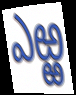
ఎఱ్ఱ